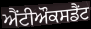
ਐਂਟੀਔਕਸਡੈਂਟ